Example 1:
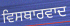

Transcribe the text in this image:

ਵਿਸਥਾਰਵਾਦ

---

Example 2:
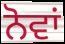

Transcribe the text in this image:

ਨੋਵਾਂ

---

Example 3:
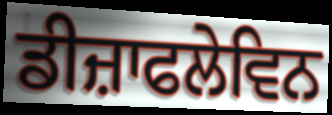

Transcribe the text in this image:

ਡੀਜ਼ਾਫਲੇਵਿਨ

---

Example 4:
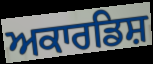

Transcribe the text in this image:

ਅਕਾਰਡਿਸ਼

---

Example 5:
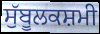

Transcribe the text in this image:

ਸੁੱਬੂਲਕਸ਼ਮੀ